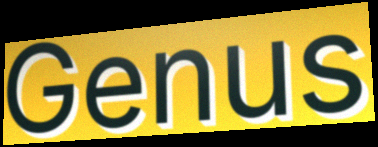
Genus